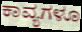
ಕಾವ್ಯಗಳೂ